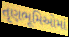
તૃણભૂમિઓમાં